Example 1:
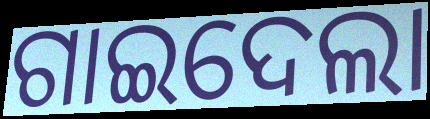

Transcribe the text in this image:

ଗାଇଦେଲା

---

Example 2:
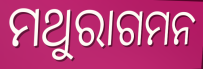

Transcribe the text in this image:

ମଥୁରାଗମନ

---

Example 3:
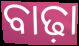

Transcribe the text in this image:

ବାଢ଼ା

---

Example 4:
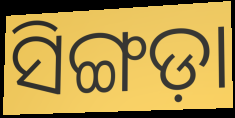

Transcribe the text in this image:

ସିଙ୍ଗଡ଼ା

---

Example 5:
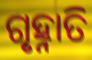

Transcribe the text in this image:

ଗୃହ୍ନାତି